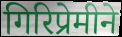
गिरिप्रेमीने